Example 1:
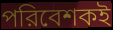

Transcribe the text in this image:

পরিবেশকই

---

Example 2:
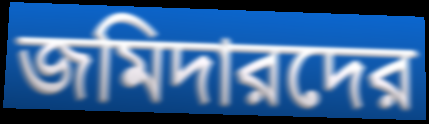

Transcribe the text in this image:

জমিদারদের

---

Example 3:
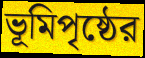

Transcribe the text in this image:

ভূমিপৃষ্ঠের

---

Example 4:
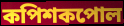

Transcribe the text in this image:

কপিশকপোল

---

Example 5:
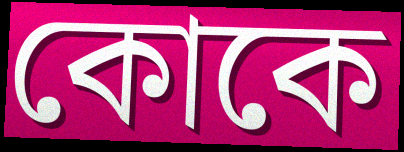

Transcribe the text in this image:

কোকে